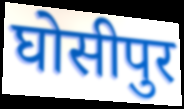
घोसीपुर